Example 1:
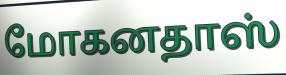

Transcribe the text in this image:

மோகனதாஸ்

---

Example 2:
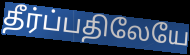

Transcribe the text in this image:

தீர்ப்பதிலேயே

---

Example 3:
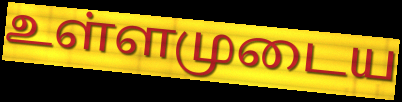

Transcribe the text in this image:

உள்ளமுடைய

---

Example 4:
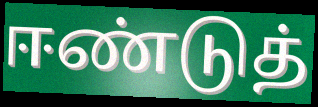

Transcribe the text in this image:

ஈண்டுத்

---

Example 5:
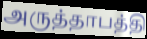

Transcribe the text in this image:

அருத்தாபத்தி